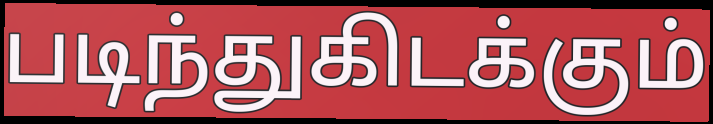
படிந்துகிடக்கும்